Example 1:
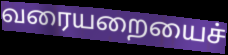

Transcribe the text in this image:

வரையறையைச்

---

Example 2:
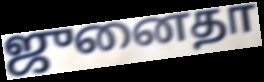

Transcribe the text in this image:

ஜுனைதா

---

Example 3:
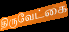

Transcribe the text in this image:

திருவேட்கை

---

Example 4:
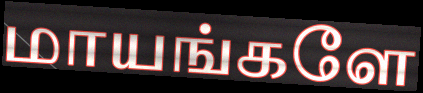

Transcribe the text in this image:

மாயங்களே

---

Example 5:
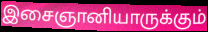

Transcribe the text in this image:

இசைஞானியாருக்கும்